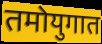
तमोयुगात